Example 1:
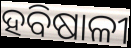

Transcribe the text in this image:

ହବିଷାଳୀ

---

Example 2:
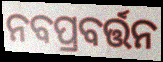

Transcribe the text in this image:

ନବପ୍ରବର୍ତ୍ତନ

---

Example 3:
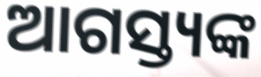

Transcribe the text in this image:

ଆଗସ୍ତ୍ୟଙ୍କ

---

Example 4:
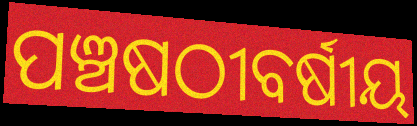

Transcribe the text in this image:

ପଞ୍ଚଷଠୀବର୍ଷୀୟ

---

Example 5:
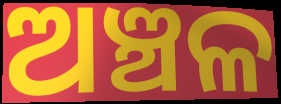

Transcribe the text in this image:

ଅଞ୍ଚଳ